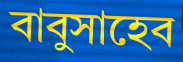
বাবুসাহেব